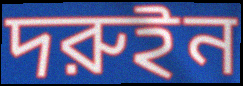
দরুইন